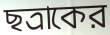
ছত্রাকের